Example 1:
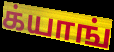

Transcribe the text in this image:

க்யாங்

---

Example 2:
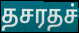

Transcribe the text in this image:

தசரதச்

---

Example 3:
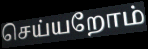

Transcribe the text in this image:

செய்யறோம்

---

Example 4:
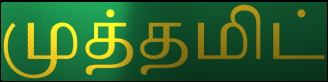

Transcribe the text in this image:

முத்தமிட்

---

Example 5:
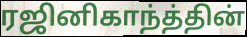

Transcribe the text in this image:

ரஜினிகாந்த்தின்